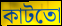
কাটতো